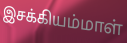
இசக்கியம்மாள்